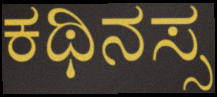
ಕಥಿನಸ್ಸ